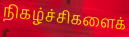
நிகழ்ச்சிகளைக்